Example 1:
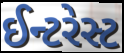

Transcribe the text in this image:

ઈન્ટરેસ્ટ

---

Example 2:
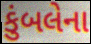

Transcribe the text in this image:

કુંબલેના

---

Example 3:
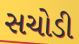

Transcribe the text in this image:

સચોડી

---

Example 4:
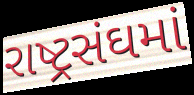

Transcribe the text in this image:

રાષ્ટ્રસંઘમાં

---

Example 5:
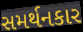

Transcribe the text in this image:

સમર્થનકાર